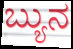
ಬ್ಯುನ